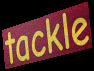
tackle